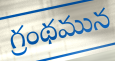
గ్రంథమున